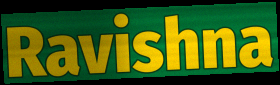
Ravishna